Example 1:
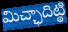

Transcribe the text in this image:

మిచ్ఛాదిట్ఠి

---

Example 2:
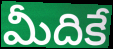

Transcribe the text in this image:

మీదికే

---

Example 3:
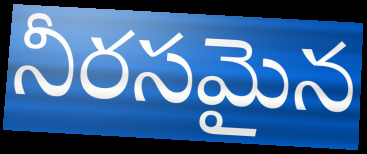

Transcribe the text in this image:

నీరసమైన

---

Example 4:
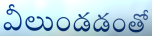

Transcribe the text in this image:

వీలుండడంతో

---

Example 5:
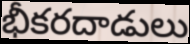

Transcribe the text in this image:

భీకరదాడులు